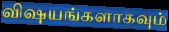
விஷயங்களாகவும்